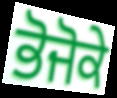
ਭੋਜੋਕੇ